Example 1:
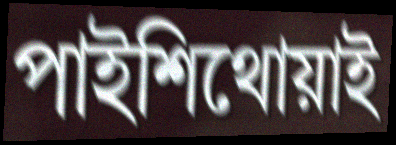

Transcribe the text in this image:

পাইশিথোয়াই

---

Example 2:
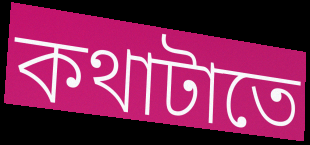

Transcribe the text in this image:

কথাটাতে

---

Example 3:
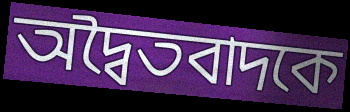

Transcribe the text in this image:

অদ্বৈতবাদকে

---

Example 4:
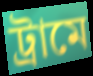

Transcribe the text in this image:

ট্রামে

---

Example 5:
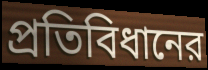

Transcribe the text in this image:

প্রতিবিধানের